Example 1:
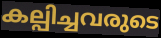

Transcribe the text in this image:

കല്പിച്ചവരുടെ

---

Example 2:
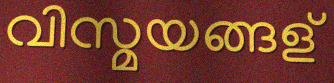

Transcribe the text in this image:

വിസ്മയങ്ങള്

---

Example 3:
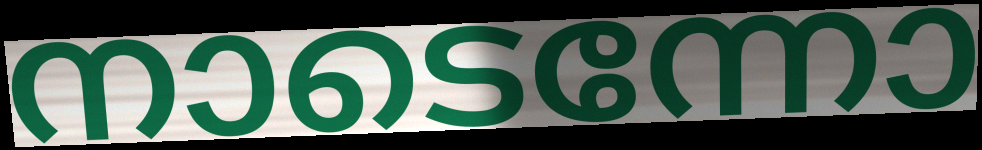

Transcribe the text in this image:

നാടെന്നോ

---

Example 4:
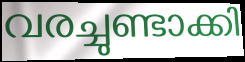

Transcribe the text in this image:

വരച്ചുണ്ടാക്കി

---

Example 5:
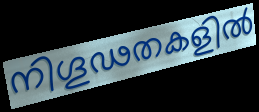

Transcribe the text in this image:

നിഗൂഢതകളിൽ